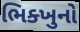
ભિક્ખુનો